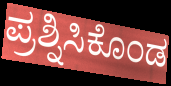
ಪ್ರಶ್ನಿಸಿಕೊಂಡ